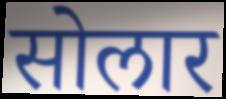
सोलार